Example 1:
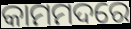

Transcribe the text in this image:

କାମମଦରେ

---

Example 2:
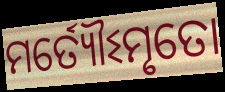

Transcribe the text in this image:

ମର୍ତ୍ୟୌଽମୃତୋ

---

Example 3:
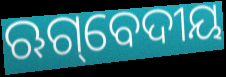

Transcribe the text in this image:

ଋଗ୍‌ବେଦୀୟ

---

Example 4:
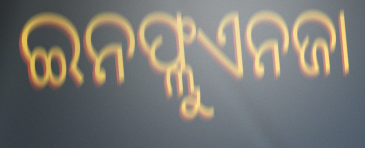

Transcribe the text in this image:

ଇନଫ୍ଲୁଏନଜା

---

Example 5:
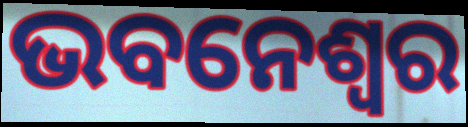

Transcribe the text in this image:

ଭବନେଶ୍ୱର